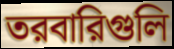
তরবারিগুলি